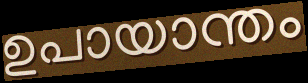
ഉപായാന്തം